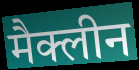
मैक्लीन